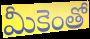
మీకెంతో